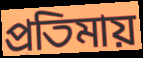
প্রতিমায়